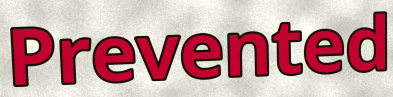
Prevented